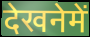
देखनेमें